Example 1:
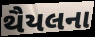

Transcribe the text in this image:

થૈયલના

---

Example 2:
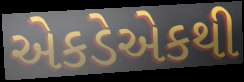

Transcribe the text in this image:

એકડેએકથી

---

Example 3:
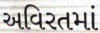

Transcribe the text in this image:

અવિરતમાં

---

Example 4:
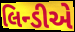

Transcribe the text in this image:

લિન્ડીએ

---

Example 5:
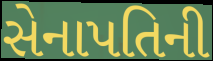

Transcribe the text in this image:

સેનાપતિની